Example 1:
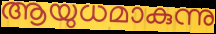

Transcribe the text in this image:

ആയുധമാകുന്നു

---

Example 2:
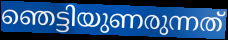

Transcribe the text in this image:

ഞെട്ടിയുണരുന്നത്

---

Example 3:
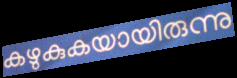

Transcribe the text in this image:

കഴുകുകയായിരുന്നു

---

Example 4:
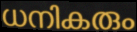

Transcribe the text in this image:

ധനികരും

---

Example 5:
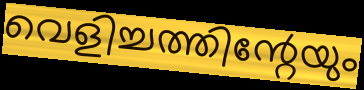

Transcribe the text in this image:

വെളിച്ചത്തിന്റേയും